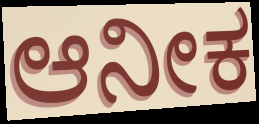
ಆನೀಕ